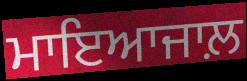
ਮਾਇਆਜਾਲ਼